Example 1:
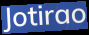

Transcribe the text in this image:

Jotirao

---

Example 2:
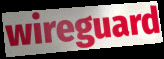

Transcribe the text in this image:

wireguard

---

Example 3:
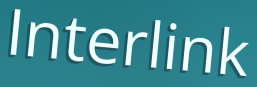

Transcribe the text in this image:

Interlink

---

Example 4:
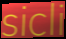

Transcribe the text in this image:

sicli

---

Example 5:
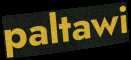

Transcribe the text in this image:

paltawi